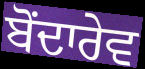
ਬੋਂਦਾਰੇਵ